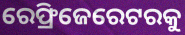
ରେଫ୍ରିଜେରେଟରକୁ